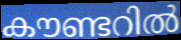
കൗണ്ടറിൽ